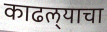
काढल्याचा